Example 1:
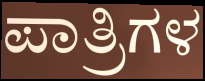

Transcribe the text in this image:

ಪಾತ್ರಿಗಳ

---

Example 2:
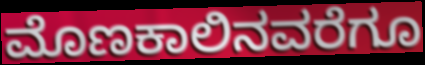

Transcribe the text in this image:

ಮೊಣಕಾಲಿನವರೆಗೂ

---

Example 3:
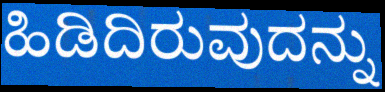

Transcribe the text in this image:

ಹಿಡಿದಿರುವುದನ್ನು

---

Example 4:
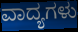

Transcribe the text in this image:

ವಾದ್ಯಗಳು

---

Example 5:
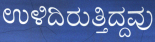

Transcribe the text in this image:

ಉಳಿದಿರುತ್ತಿದ್ದವು